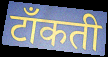
टाँकती